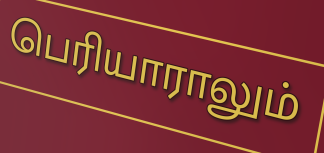
பெரியாராலும்